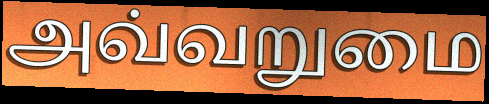
அவ்வறுமை